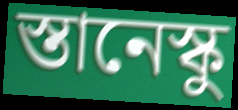
স্তানেস্কু